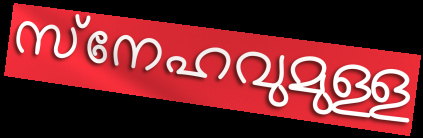
സ്‌നേഹവുമുള്ള